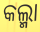
କଲ୍ମା